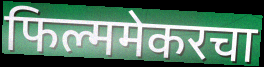
फिल्ममेकरचा